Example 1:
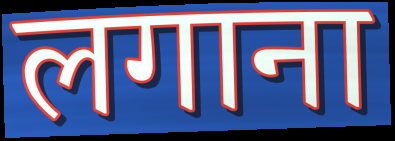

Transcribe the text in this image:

लगाना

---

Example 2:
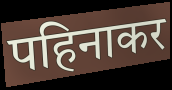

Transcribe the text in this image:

पहिनाकर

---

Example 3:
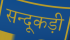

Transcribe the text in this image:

सन्दूकड़ी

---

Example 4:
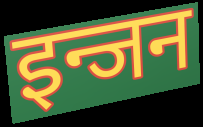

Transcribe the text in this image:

इन्जन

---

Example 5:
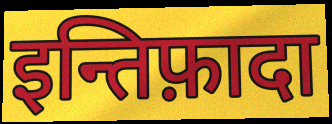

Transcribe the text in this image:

इन्तिफ़ादा